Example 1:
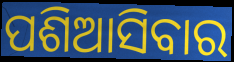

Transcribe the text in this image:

ପଶିଆସିବାର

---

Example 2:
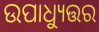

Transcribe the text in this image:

ଉପାଧ୍ୟୁତ୍ତର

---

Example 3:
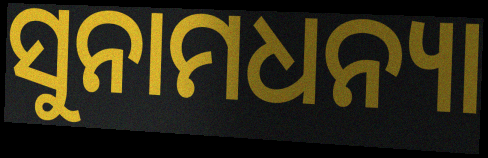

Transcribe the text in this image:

ସୁନାମଧନ୍ୟା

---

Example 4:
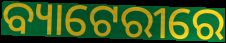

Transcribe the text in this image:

ବ୍ୟାଟେରୀରେ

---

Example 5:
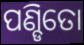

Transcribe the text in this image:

ପଣ୍ଡିତୋ